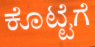
ಕೊಟ್ಟೆಗೆ